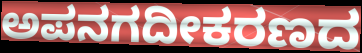
ಅಪನಗದೀಕರಣದ